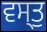
ਵਸ੍ਤੁ